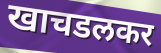
खाचडलकर